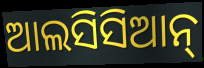
ଆଲସିସିଆନ୍